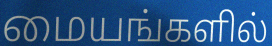
மையங்களில்